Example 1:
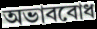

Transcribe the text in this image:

অভাববোধ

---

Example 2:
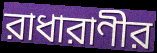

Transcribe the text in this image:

রাধারাণীর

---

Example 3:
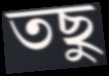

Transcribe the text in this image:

তছু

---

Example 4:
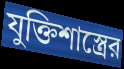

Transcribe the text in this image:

যুক্তিশাস্ত্রের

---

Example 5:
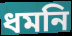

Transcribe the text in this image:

ধমনি